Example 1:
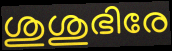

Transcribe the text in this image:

ശുശുഭിരേ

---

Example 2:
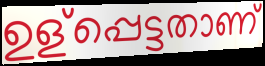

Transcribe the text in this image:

ഉള്പ്പെട്ടതാണ്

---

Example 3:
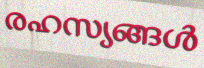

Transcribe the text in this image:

രഹസ്യങ്ങൾ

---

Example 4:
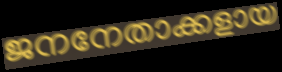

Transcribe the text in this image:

ജനനേതാക്കളായ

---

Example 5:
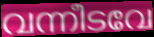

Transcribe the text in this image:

വന്നീടവേ